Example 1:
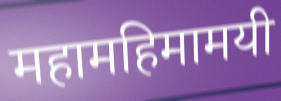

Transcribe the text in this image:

महामहिमामयी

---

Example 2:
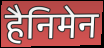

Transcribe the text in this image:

हैनिमेन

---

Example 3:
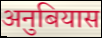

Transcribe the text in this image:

अनुबियास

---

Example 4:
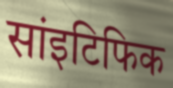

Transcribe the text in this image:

सांइटिफिक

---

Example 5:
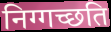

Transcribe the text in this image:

निग्गच्छति